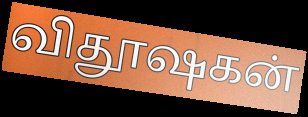
விதூஷகன்